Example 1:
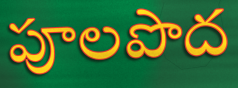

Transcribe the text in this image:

పూలపొద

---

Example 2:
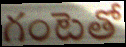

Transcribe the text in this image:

గంటెతో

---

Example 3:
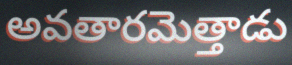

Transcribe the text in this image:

అవతారమెత్తాడు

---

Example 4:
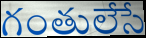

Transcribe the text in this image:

గంతులేసే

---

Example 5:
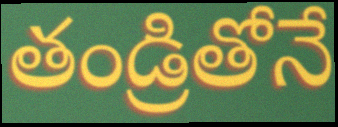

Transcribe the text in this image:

తండ్రితోనే